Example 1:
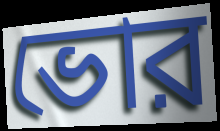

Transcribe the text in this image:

ভোর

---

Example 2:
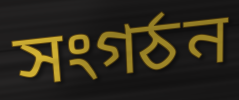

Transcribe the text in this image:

সংগঠন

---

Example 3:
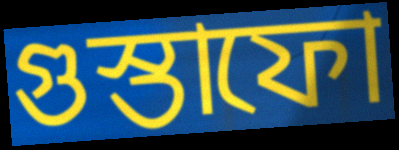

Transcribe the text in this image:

গুস্তাফো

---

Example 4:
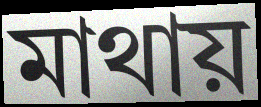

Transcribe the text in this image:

মাথায়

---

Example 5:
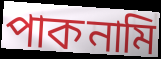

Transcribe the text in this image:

পাকনামি